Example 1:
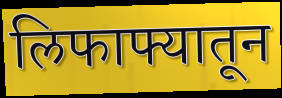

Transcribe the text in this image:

लिफाफ्यातून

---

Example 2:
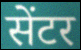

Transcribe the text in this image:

सेंटर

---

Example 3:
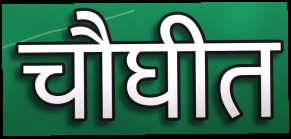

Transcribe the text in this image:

चौघीत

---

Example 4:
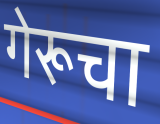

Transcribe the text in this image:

गेरूचा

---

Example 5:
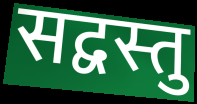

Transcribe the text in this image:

सद्वस्तु